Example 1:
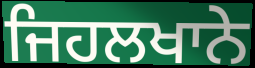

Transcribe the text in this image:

ਜਿਹਲਖਾਨੇ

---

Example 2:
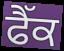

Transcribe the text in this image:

ਫੈੱਕ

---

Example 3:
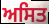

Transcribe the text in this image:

ਅਸਿਤ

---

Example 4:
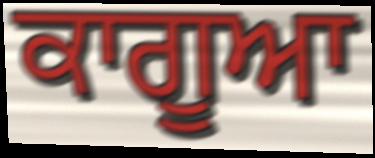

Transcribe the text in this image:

ਕਾਗੂਆ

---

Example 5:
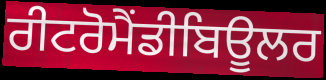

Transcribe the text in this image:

ਰੀਟਰੋਮੈਂਡੀਬਿਊਲਰ